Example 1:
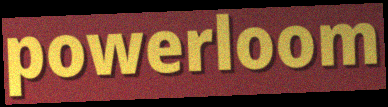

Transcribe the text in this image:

powerloom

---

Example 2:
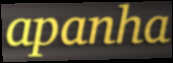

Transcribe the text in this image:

apanha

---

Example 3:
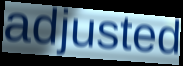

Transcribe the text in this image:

adjusted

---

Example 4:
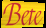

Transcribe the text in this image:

Bete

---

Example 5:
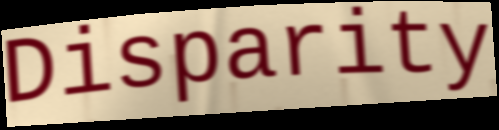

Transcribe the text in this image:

Disparity